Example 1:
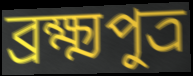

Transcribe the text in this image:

ব্ৰক্ষ্মপুত্ৰ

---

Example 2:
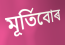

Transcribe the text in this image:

মূৰ্তিবোৰ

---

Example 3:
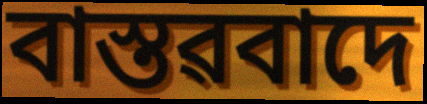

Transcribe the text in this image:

বাস্তৱবাদে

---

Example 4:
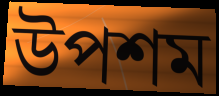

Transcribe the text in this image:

উপশম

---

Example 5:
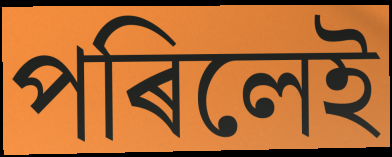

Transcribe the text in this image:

পৰিলেই